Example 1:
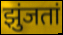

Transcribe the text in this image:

झुंजतां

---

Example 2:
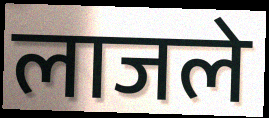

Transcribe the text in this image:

लाजले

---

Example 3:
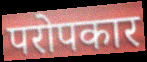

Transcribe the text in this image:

परोपकार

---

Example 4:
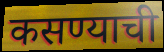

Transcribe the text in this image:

कसण्याची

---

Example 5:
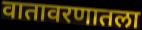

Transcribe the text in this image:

वातावरणातला